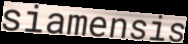
siamensis